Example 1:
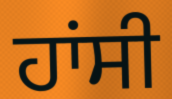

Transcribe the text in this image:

ਹਾਂਸੀ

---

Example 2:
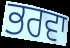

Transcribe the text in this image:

ਭਰਵਾ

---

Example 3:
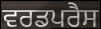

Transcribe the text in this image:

ਵਰਡਪਰੈਸ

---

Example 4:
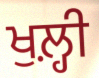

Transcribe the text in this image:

ਖੁਲ਼੍ਹੀ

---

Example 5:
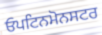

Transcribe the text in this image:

ਓਪਟਿਨਮੋਨਸਟਰ